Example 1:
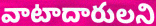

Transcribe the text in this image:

వాటాదారులని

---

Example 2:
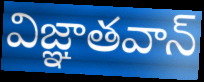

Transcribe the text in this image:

విజ్ఞాతవాన్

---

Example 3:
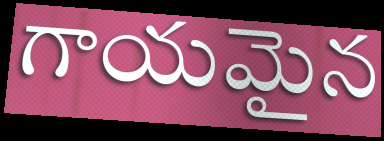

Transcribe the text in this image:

గాయమైన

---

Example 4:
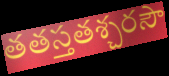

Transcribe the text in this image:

తతస్తతశ్చరసౌ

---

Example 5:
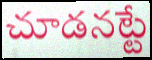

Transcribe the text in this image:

చూడనట్టే